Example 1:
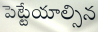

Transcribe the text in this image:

పెట్టేయాల్సిన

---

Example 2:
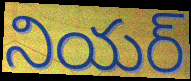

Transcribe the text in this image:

నియర్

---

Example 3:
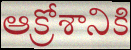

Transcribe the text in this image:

ఆక్రోశానికి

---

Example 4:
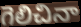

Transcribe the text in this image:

గెలిచినా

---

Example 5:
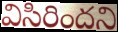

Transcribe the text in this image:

విసిరిందని